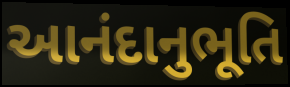
આનંદાનુભૂતિ